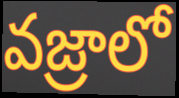
వజ్రాలో